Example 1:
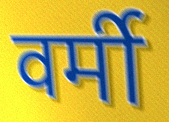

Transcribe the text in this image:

वर्मी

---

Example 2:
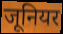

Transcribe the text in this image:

जूनियर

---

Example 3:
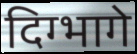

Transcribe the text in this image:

दिग्भागे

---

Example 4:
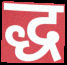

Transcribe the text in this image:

द्ध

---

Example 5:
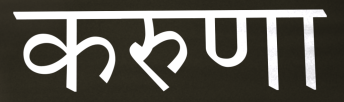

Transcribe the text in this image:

करुणा